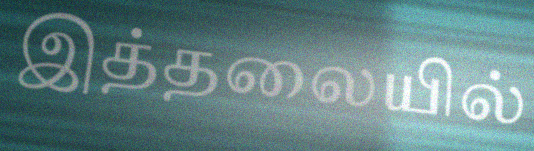
இத்தலையில்